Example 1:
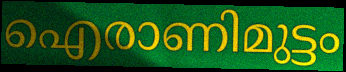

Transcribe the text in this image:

ഐരാണിമുട്ടം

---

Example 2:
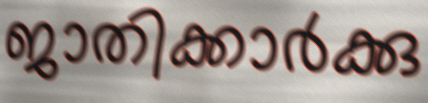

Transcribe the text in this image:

ജാതിക്കാർക്കു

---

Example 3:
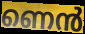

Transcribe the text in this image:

ണെൻ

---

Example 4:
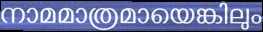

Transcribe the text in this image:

നാമമാത്രമായെങ്കിലും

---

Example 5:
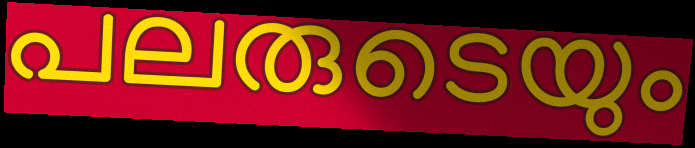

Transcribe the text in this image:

പലരുടെയും